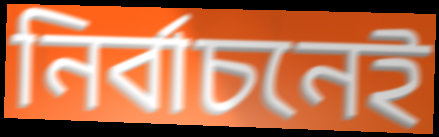
নির্বাচনেই